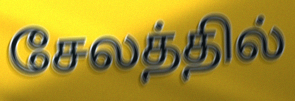
சேலத்தில்